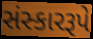
સંસ્કારરૂપે